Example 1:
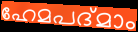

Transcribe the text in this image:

ഹേമപദ്മാം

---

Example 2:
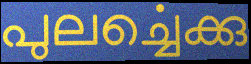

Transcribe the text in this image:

പുലൎച്ചെക്കു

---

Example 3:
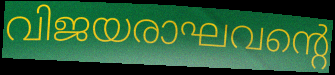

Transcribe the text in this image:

വിജയരാഘവന്റെ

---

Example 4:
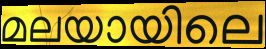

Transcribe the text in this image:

മലയായിലെ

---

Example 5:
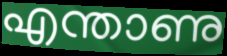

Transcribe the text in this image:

എന്താണു